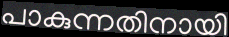
പാകുന്നതിനായി